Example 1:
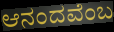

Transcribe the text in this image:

ಆನಂದವೆಂಬ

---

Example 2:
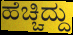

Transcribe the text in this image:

ಹೆಚ್ಚಿದ್ದು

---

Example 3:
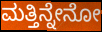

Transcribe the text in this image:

ಮತ್ತಿನ್ನೇನೋ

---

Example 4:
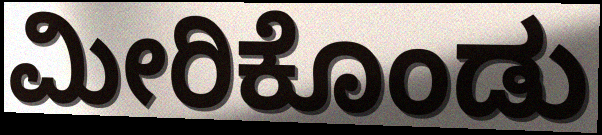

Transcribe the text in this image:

ಮೀರಿಕೊಂಡು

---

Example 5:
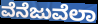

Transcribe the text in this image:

ವೆನೆಜುವೆಲಾ